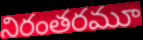
నిరంతరమూ